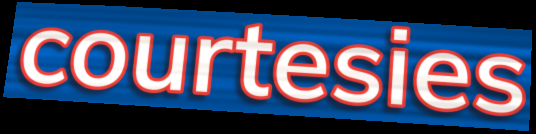
courtesies